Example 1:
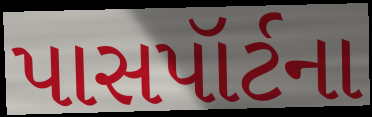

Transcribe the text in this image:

પાસપૉર્ટના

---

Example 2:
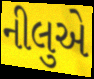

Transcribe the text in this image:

નીલુએ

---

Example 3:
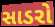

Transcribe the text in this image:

સાડરો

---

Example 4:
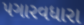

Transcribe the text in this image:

પગારવધારા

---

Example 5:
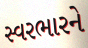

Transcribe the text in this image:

સ્વરભારને